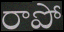
రాపో